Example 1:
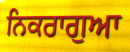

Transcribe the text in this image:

ਨਿਕਰਾਗੁਆ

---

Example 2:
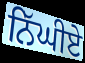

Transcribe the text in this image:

ਨਿੱਘੀਏ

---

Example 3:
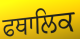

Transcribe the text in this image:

ਫਥਾਲਿਕ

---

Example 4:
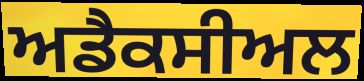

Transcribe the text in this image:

ਅਡੈਕਸੀਅਲ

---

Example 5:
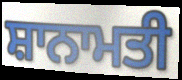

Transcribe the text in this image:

ਸ਼ਾਨਾਮਤੀ